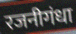
रजनीगंधा